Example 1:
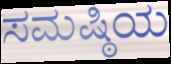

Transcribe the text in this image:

ಸಮಷ್ಠಿಯ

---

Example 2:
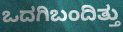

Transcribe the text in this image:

ಒದಗಿಬಂದಿತ್ತು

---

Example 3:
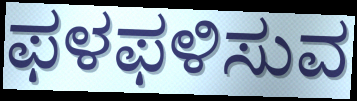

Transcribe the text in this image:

ಫಳಫಳಿಸುವ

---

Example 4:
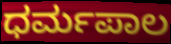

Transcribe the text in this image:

ಧರ್ಮಪಾಲ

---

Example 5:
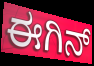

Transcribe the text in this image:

ಈಗಿನ್